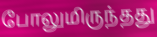
போலுமிருந்தது